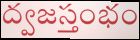
ద్వజస్తంభం